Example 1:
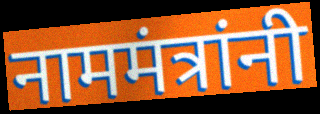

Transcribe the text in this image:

नाममंत्रांनी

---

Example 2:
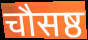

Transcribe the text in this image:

चौसष्ठ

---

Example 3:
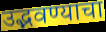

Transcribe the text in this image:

उद्भवण्याचा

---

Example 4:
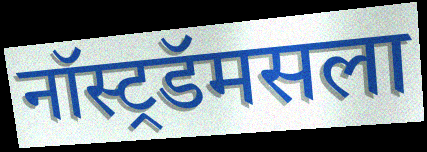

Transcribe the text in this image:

नॉस्ट्रडॅमसला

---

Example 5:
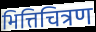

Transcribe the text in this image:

भित्तिचित्रण